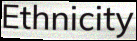
Ethnicity